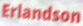
Erlandson